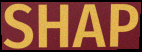
SHAP